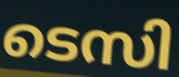
ടെസി